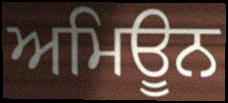
ਅਮਿਊਨ